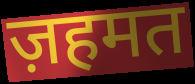
ज़हमत